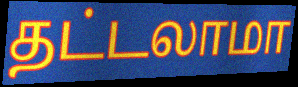
தட்டலாமா